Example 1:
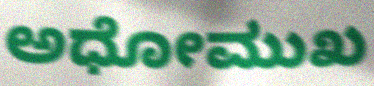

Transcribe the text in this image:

ಅಧೋಮುಖ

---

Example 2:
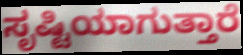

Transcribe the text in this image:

ಸೃಷ್ಟಿಯಾಗುತ್ತಾರೆ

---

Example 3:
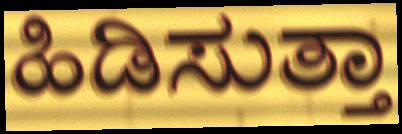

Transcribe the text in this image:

ಹಿಡಿಸುತ್ತಾ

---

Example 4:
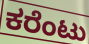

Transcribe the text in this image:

ಕರೆಂಟು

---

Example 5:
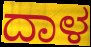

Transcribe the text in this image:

ದಾಳ